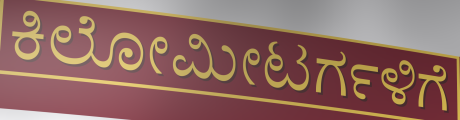
ಕಿಲೋಮೀಟರ್ಗಳಿಗೆ